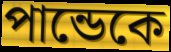
পান্ডেকে